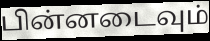
பின்னடைவும்